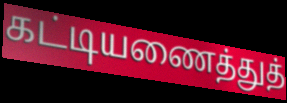
கட்டியணைத்துத்